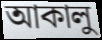
আকালু